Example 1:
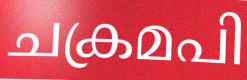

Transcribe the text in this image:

ചക്രമപി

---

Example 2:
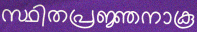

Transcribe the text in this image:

സ്ഥിതപ്രജ്ഞനാകൂ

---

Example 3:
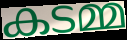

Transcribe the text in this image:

കടമ്മ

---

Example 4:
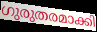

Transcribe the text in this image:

ഗുരുതരമാക്കി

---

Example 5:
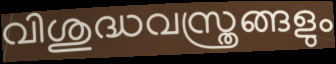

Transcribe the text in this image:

വിശുദ്ധവസ്ത്രങ്ങളും